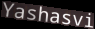
Yashasvi